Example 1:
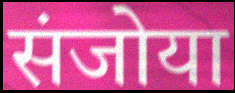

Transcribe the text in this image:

संजोया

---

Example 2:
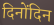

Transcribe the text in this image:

दिनोंदिन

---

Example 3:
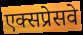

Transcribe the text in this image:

एक्सप्रेसवे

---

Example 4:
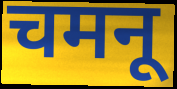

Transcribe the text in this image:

चमनू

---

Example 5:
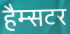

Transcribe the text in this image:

हैम्सटर